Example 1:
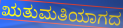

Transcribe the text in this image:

ಋತುಮತಿಯಾಗದ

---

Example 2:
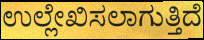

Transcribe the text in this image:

ಉಲ್ಲೇಖಿಸಲಾಗುತ್ತಿದೆ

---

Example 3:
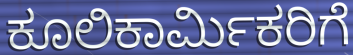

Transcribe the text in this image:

ಕೂಲಿಕಾರ್ಮಿಕರಿಗೆ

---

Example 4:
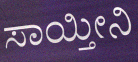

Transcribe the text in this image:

ಸಾಯ್ತೀನಿ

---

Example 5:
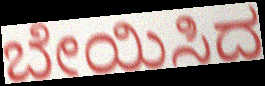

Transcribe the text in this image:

ಬೇಯಿಸಿದ